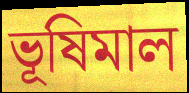
ভূষিমাল